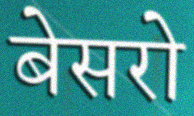
बेसरो